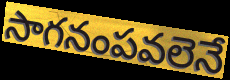
సాగనంపవలెనే